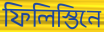
ফিলিস্তিনে